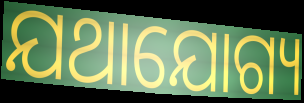
ଯଥାଯୋଗ୍ୟ